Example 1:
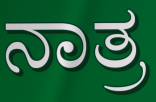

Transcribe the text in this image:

ನಾತ್ರ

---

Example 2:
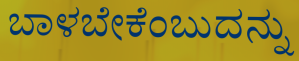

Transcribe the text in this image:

ಬಾಳಬೇಕೆಂಬುದನ್ನು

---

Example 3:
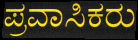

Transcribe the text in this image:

ಪ್ರವಾಸಿಕರು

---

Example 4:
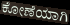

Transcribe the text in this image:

ಕೋಣೆಯಾಗಿ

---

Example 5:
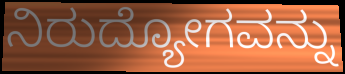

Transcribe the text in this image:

ನಿರುದ್ಯೋಗವನ್ನು